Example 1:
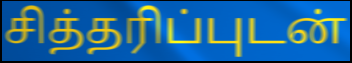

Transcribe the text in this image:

சித்தரிப்புடன்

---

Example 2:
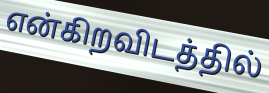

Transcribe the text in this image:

என்கிறவிடத்தில்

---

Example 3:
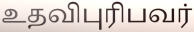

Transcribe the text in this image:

உதவிபுரிபவர்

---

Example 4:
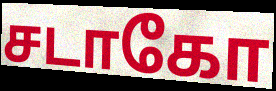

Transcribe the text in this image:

சடாகோ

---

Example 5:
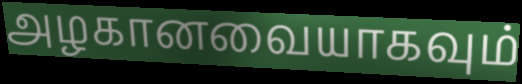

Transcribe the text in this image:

அழகானவையாகவும்